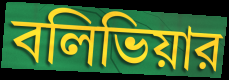
বলিভিয়ার